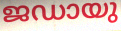
ജഡായു